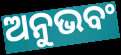
ଅନୁଭବଂ